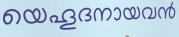
യെഹൂദനായവൻ